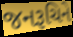
જનરૂચિને